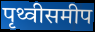
पृथ्वीसमीप